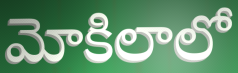
మోకిలాలో